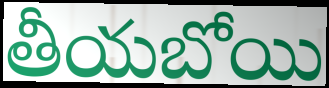
తీయబోయి